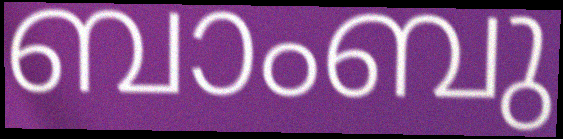
ബാംബു